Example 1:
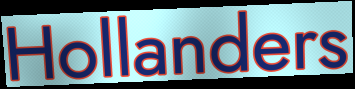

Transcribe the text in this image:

Hollanders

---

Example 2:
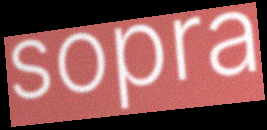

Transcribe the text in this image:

sopra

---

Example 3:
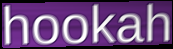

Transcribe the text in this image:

hookah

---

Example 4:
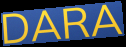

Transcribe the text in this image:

DARA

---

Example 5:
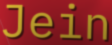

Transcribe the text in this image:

Jein